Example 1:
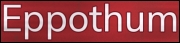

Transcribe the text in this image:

Eppothum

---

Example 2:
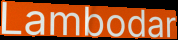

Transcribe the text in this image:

Lambodar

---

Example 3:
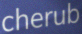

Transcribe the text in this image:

cherub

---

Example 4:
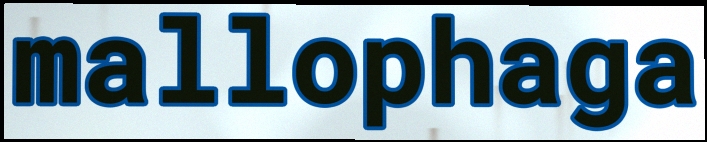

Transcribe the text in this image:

mallophaga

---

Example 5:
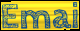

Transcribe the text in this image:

Emai